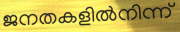
ജനതകളിൽനിന്ന്